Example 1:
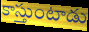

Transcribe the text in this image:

కాస్తుంటాడు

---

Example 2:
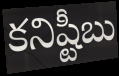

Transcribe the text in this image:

కనిష్టీబు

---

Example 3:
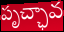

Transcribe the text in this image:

పృచ్ఛావ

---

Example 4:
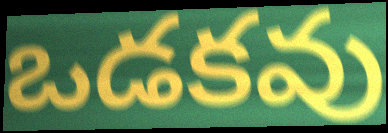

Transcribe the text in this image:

ఒడకవు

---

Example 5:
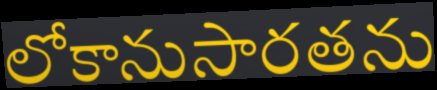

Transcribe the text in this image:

లోకానుసారతను